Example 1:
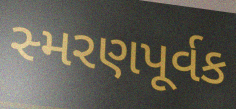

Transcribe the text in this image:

સ્મરણપૂર્વક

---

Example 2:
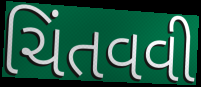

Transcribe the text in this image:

ચિંતવવી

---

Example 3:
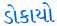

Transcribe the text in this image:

ડોકાયો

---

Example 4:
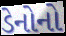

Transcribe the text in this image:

ડેનોનો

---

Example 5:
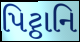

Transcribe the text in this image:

પિટ્ઠાનિ